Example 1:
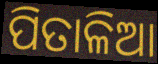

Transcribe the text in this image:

ପିତାଳିଆ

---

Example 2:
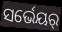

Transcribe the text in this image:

ସର୍ଭେୟର୍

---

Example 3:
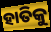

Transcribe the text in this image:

ହାତିକୁ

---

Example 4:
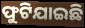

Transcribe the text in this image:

ଫୁଟିଯାଇଛି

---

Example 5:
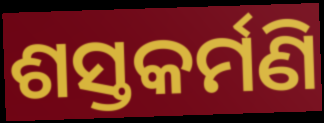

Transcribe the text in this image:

ଶସ୍ତକର୍ମଣି